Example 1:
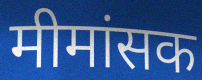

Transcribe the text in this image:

मीमांसक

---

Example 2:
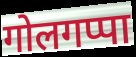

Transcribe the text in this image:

गोलगप्पा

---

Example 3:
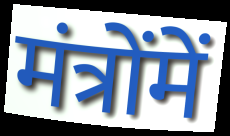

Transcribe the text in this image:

मंत्रोंमें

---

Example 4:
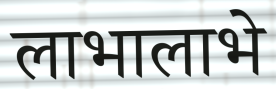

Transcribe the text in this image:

लाभालाभे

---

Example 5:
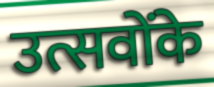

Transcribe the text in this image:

उत्सवोंके